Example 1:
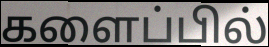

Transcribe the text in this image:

களைப்பில்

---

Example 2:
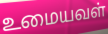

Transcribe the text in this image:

உமையவள்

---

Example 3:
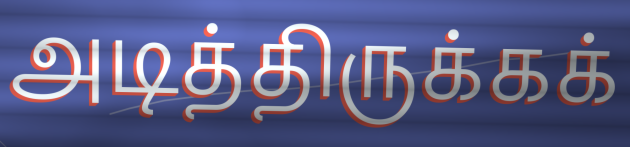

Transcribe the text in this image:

அடித்திருக்கக்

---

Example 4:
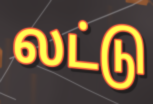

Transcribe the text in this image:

லட்டு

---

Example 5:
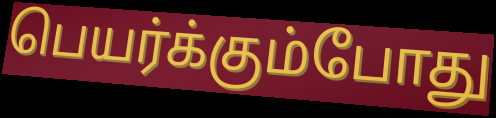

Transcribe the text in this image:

பெயர்க்கும்போது